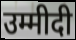
उम्मीदी